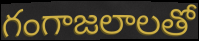
గంగాజలాలతో